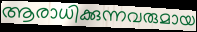
ആരാധിക്കുന്നവരുമായ